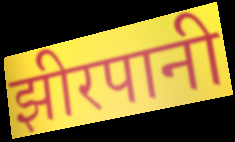
झीरपानी